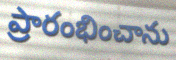
ప్రారంభించాను